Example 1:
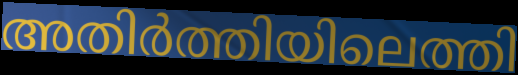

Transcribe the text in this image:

അതിർത്തിയിലെത്തി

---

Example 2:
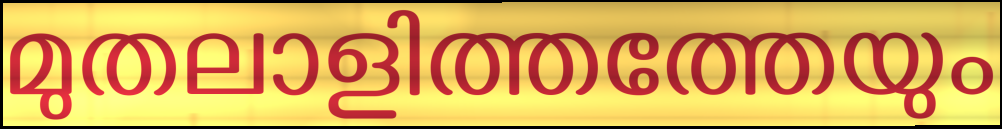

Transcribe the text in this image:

മുതലാളിത്തത്തേയും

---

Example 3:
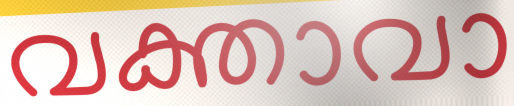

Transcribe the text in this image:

വക്താവാ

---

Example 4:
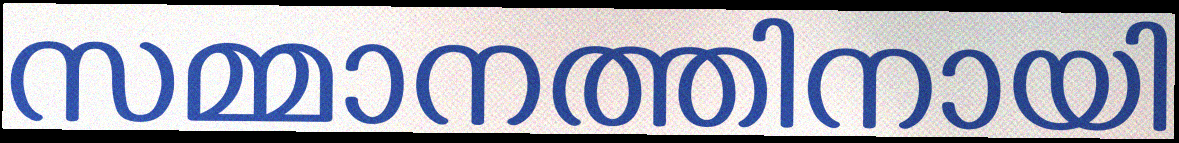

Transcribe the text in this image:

സമ്മാനത്തിനായി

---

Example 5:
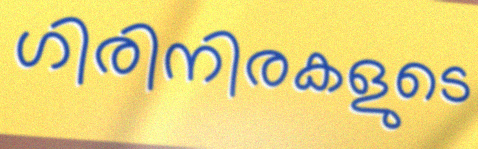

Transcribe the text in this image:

ഗിരിനിരകളുടെ